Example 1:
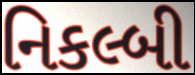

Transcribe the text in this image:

નિકલ્બી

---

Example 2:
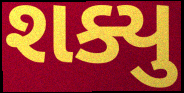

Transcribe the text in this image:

શક્યુ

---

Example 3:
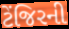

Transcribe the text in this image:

ટેંજિરની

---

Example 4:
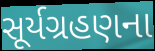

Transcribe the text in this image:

સૂર્યગ્રહણના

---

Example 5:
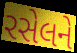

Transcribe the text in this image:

રસેલને